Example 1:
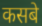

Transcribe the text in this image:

कसबे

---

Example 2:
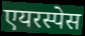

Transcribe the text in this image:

एयरस्पेस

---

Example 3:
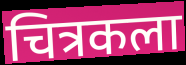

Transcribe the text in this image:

चित्रकला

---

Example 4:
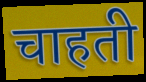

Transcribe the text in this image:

चाहती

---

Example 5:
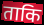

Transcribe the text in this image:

ताकि